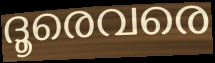
ദൂരെവരെ